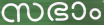
സഭാം